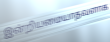
இன்றியமையாதவளாக